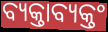
ବ୍ୟକ୍ତାବ୍ୟକ୍ତଂ